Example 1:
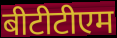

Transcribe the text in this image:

बीटीटीएम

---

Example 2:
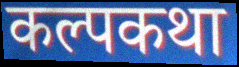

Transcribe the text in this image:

कल्पकथा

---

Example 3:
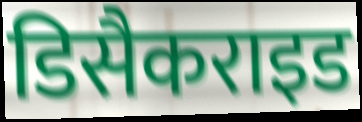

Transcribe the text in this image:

डिसैकराइड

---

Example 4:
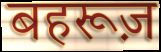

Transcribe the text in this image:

बहरूज़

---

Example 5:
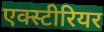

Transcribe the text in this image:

एक्स्टीरियर